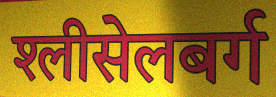
श्लीसेलबर्ग